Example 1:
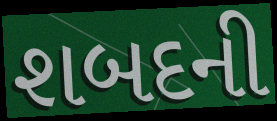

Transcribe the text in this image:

શબદની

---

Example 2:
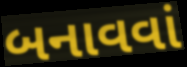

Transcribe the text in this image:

બનાવવાં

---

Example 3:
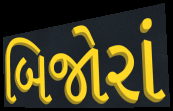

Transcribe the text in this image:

બિજોરાં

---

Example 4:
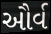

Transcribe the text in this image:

ઔર્વ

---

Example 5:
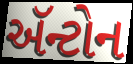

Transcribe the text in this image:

ઍન્ટોન